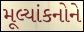
મૂલ્યાંકનોને